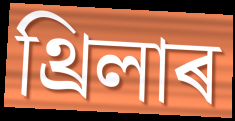
থ্ৰিলাৰ